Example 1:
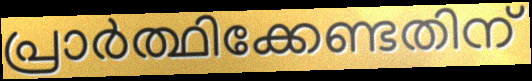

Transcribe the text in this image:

പ്രാർത്ഥിക്കേണ്ടതിന്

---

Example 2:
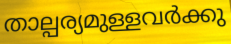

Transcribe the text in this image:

താല്പര്യമുള്ളവർക്കു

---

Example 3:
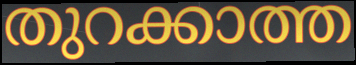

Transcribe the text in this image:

തുറക്കാത്ത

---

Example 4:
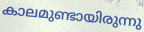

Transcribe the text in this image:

കാലമുണ്ടായിരുന്നു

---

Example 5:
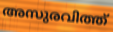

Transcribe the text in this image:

അസുരവിത്ത്